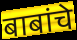
बाबांचे